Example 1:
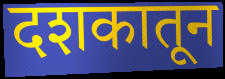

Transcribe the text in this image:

दशकातून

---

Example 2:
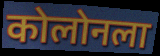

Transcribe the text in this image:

कोलोनला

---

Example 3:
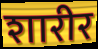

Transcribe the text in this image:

शारीर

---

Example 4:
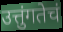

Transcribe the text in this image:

उत्तुंगतेचं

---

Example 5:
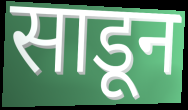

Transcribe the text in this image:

साडून